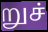
றுச்